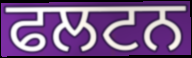
ਫਲਟਨ